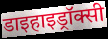
डाइहाइड्रॉक्सी